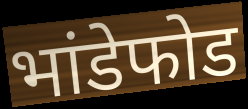
भांडेफोड